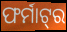
ଫର୍ମାଟ୍‌ର